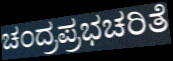
ಚಂದ್ರಪ್ರಭಚರಿತೆ